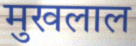
मुखलाल